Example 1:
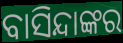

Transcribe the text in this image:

ବାସିନ୍ଦାଙ୍କର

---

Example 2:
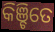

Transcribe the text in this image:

କିଞ୍ଚିତେ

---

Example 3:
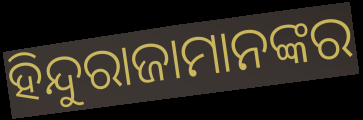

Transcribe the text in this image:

ହିନ୍ଦୁରାଜାମାନଙ୍କର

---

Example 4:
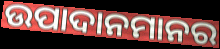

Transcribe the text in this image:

ଉପାଦାନମାନର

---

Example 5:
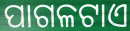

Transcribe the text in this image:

ପାଗଳଟାଏ